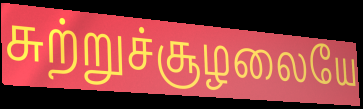
சுற்றுச்சூழலையே